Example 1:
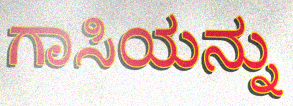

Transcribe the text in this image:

ಗಾಸಿಯನ್ನು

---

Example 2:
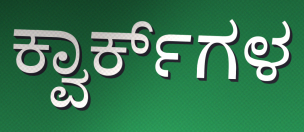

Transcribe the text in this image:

ಕ್ವಾರ್ಕ್‌ಗಳ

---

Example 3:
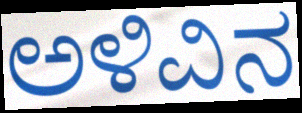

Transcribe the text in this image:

ಅಳಿವಿನ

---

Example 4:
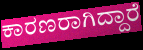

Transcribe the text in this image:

ಕಾರಣರಾಗಿದ್ದಾರೆ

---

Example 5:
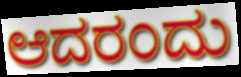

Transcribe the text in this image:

ಆದರಂದು